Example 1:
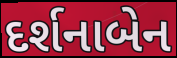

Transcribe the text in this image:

દર્શનાબેન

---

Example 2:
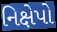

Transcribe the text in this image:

નિક્ષેપો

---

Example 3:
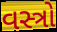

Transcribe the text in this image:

વસ્ત્રો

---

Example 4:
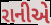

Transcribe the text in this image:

રાનીએ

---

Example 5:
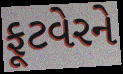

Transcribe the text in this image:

ફૂટવેરને